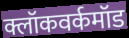
क्लॉकवर्कमॉड